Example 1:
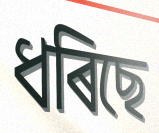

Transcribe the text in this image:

ধৰিছে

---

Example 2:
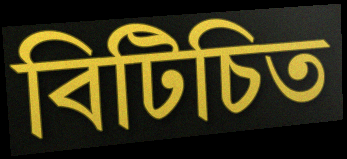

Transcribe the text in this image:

বিটিচিত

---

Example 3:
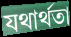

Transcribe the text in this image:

যথাৰ্থতা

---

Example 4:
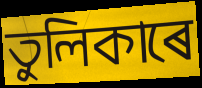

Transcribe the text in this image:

তুলিকাৰে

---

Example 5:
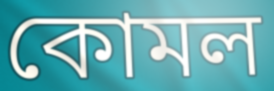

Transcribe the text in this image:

কোমল